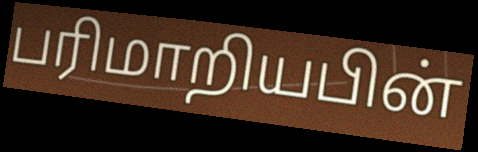
பரிமாறியபின்